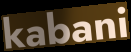
kabani